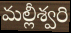
మల్లీశ్వరి